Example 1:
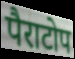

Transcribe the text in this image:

पैराटोप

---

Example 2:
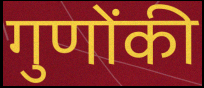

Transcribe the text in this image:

गुणोंकी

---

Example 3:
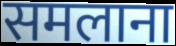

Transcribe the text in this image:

समलाना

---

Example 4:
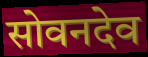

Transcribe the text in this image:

सोवनदेव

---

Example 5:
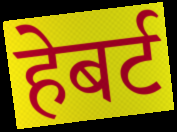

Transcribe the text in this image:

हेबर्ट